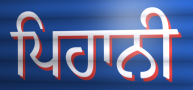
ਪਿਹਾਨੀ